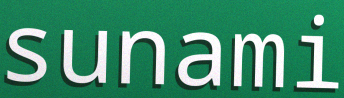
sunami